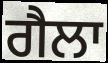
ਗੈਲਾ